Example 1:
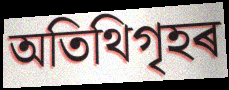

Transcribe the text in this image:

অতিথিগৃহৰ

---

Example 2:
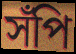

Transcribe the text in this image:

সঁপি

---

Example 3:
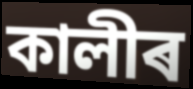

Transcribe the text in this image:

কালীৰ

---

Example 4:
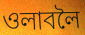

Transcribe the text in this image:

ওলাবলৈ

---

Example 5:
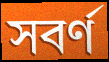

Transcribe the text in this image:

সবৰ্ণ